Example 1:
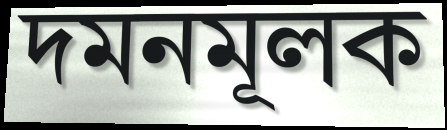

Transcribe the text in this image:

দমনমূলক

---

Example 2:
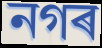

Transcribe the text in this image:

নগৰ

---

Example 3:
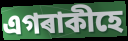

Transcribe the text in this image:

এগৰাকীহে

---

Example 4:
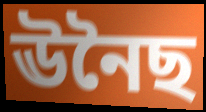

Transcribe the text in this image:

ঊনৈছ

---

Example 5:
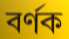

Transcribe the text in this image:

বৰ্ণক